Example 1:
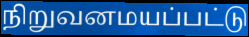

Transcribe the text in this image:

நிறுவனமயப்பட்டு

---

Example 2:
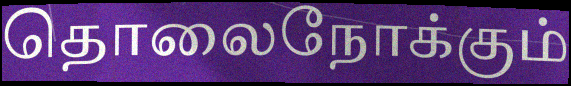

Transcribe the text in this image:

தொலைநோக்கும்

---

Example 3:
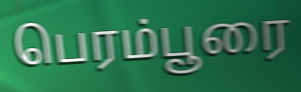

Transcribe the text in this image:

பெரம்பூரை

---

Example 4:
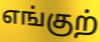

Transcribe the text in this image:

எங்குற்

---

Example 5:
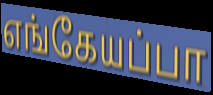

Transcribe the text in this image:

எங்கேயப்பா